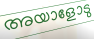
അയാളോടു